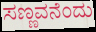
ಸಣ್ಣವನೆಂದು